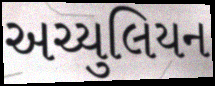
અચ્યુલિયન